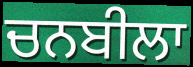
ਚਨਬੀਲਾ